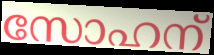
സോഹന്